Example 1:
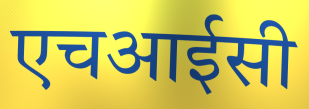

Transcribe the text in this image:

एचआईसी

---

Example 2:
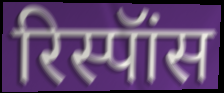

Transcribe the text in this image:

रिस्पॉंस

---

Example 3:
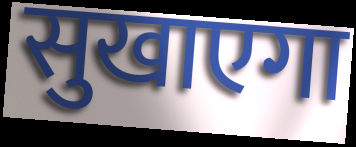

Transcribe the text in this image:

सुखाएगा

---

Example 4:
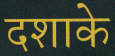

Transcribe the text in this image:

दशाके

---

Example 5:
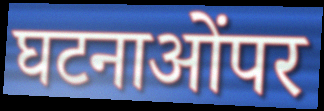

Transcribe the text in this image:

घटनाओंपर